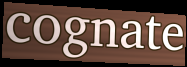
cognate